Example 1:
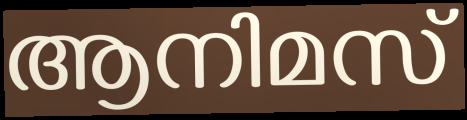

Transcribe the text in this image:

ആനിമസ്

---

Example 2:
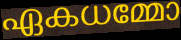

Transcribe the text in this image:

ഏകധമ്മോ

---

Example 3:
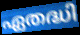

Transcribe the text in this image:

ഏതദ്ധി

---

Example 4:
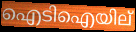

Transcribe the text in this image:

ഐടിഐയില്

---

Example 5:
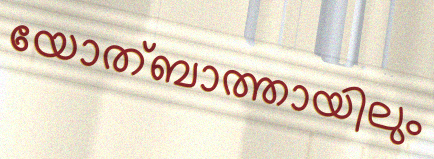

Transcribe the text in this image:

യോത്ബാത്തായിലും